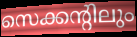
സെക്കന്റിലും